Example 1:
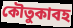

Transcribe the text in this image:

কৌতুকাবহ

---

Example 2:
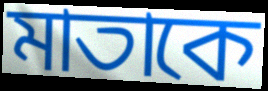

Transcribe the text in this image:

মাতাকে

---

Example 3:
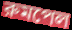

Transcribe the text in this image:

রুমপেল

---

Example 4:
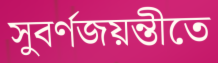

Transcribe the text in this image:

সুবর্ণজয়ন্তীতে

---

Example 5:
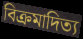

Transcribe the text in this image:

বিক্রমাদিত্য